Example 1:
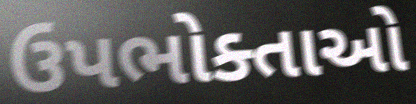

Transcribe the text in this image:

ઉપભોક્તાઓ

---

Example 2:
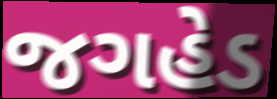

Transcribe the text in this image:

જગહેડ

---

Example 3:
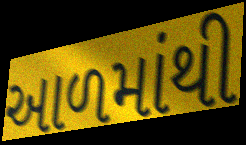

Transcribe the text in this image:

આળમાંથી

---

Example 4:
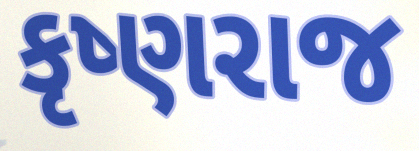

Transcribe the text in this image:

કૃષ્ણરાજ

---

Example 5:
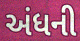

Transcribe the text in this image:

અંધની